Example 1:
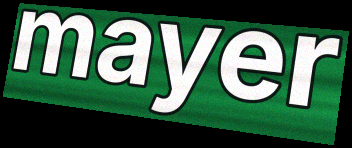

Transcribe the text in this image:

mayer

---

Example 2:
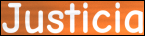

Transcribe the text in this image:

Justicia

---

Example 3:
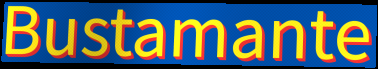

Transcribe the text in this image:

Bustamante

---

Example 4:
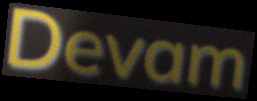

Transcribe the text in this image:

Devam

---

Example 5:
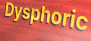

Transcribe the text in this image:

Dysphoric